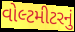
વોલ્ટમીટરનું